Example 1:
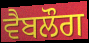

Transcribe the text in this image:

ਵੈਬਲੌਗ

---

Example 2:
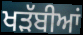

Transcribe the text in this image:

ਖੜੱਬੀਆਂ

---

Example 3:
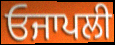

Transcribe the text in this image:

ਓਜਾਪਲੀ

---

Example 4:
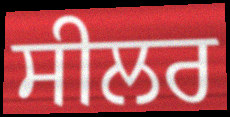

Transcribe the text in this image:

ਸੀਲਰ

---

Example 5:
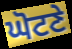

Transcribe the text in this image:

ਘੋਟਣੇ